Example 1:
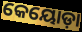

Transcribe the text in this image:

କେୟୋଡ଼ା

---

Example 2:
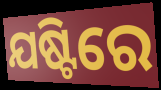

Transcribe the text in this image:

ଯଷ୍ଟିରେ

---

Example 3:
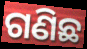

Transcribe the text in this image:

ଗଣିଛ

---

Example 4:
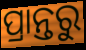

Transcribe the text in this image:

ପ୍ରାନ୍ତରୁ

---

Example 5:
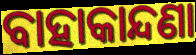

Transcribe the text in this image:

ବାହାକାନ୍ଦଣା